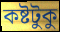
কষ্টটুকু